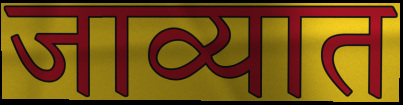
जाव्यात